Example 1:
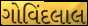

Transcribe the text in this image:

ગોવિંદલાલ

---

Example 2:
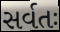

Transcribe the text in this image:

સર્વતઃ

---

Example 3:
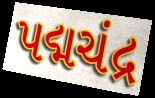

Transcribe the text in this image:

પદ્મચંદ્ર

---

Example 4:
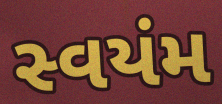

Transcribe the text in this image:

સ્વયંમ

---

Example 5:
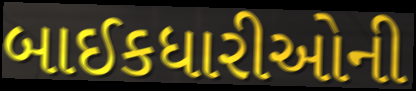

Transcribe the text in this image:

બાઈકધારીઓની